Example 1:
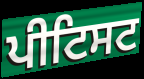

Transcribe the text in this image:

ਪੀਟਿਸਟ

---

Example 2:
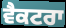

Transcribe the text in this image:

ਵੈਕਟਰਾ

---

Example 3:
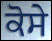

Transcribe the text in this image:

ਕੋਸੇ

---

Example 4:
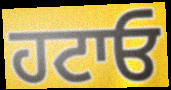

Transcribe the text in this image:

ਹਟਾਓ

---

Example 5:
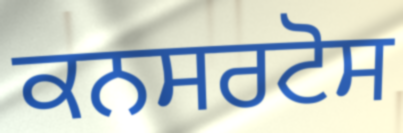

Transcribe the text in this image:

ਕਨਸਰਟੋਸ